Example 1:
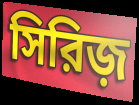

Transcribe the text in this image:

সিরিজ়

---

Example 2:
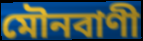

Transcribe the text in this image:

মৌনবাণী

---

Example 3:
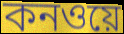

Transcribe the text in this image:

কনওয়ে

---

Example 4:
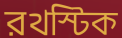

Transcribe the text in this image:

রথস্টিক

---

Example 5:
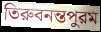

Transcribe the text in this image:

তিরুবনন্তপুরম